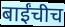
बाईंचीच